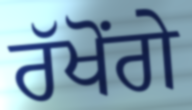
ਰੱਖੋਂਗੇ